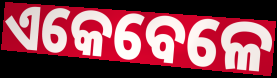
ଏକେବେଳେ